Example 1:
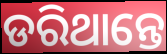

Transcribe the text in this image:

ଡରିଥାନ୍ତେ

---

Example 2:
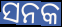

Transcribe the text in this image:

ସନକ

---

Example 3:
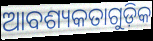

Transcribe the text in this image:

ଆବଶ୍ୟକତାଗୁଡ଼ିକ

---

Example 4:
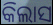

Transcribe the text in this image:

କିଲାସ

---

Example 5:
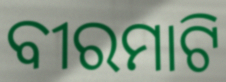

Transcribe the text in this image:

ବୀରମାଟି